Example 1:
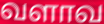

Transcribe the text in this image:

வளாவ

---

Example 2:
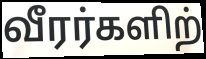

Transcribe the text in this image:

வீரர்களிற்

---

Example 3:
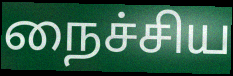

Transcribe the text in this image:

நைச்சிய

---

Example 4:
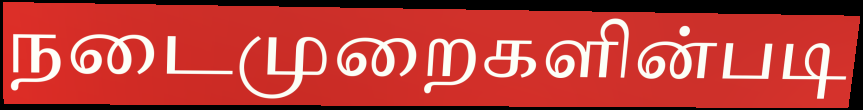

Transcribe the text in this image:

நடைமுறைகளின்படி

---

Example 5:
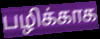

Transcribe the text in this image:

பழிக்காக